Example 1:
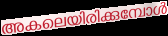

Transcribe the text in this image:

അകലെയിരിക്കുമ്പോൾ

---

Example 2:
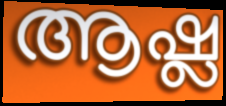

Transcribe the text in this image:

ആഷ്ല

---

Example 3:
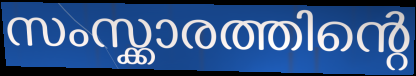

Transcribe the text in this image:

സംസ്ക്കാരത്തിന്റെ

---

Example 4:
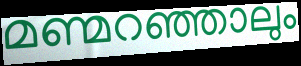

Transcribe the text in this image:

മണ്മറഞ്ഞാലും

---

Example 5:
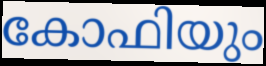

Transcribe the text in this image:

കോഫിയും